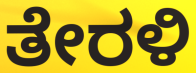
ತೇರಳಿ